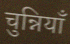
चुन्नियाँ